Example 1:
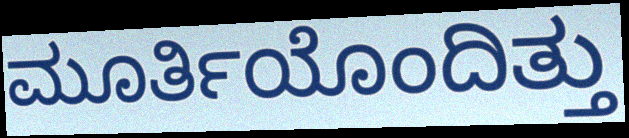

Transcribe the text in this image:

ಮೂರ್ತಿಯೊಂದಿತ್ತು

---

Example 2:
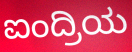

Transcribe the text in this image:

ಐಂದ್ರಿಯ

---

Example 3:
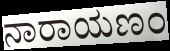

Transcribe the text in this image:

ನಾರಾಯಣಂ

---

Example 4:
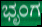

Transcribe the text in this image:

ಭೃಂಗ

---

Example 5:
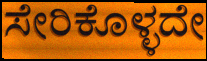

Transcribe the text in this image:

ಸೇರಿಕೊಳ್ಳದೇ